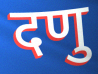
दणु